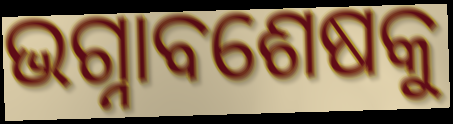
ଭଗ୍ନାବଶେଷକୁ